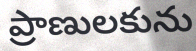
ప్రాణులకును